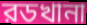
রডখানা